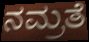
ನಮ್ರತೆ